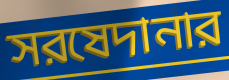
সরষেদানার